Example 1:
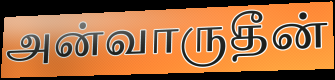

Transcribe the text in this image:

அன்வாருதீன்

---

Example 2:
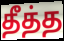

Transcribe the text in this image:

தீத்த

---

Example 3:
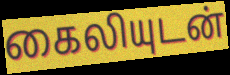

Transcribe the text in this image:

கைலியுடன்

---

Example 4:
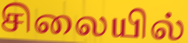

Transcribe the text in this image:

சிலையில்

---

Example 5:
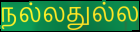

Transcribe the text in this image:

நல்லதுல்ல